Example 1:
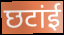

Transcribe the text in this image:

छटांई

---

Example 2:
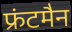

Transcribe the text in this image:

फ्रंटमैन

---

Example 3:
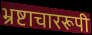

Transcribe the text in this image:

भ्रष्टाचाररूपी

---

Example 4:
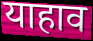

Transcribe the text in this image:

याहाव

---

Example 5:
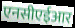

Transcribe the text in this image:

एनसीएईआर